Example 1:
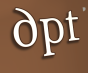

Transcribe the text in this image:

dpt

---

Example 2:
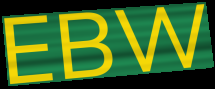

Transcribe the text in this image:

EBW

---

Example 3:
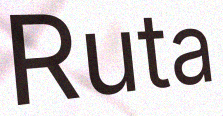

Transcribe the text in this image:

Ruta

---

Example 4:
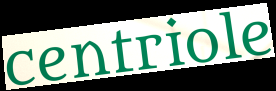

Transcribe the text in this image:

centriole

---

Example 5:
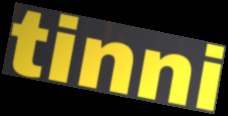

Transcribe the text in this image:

tinni